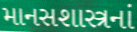
માનસશાસ્ત્રનાં